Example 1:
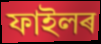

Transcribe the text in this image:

ফাইলৰ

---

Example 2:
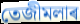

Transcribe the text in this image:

তেজীমলাৰ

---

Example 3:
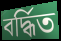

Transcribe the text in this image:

বৰ্দ্ধিত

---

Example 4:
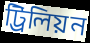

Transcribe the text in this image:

ট্ৰিলিয়ন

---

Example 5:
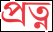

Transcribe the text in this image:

প্ৰত্ন